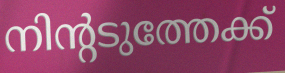
നിന്റടുത്തേക്ക്